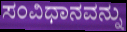
ಸಂವಿಧಾನವನ್ನು